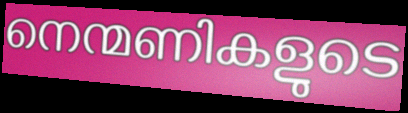
നെന്മണികളുടെ